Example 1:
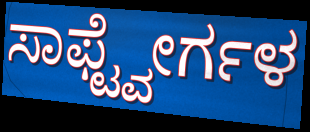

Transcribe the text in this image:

ಸಾಫ್ಟ್ವೇರ್ಗಳ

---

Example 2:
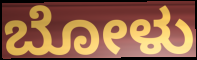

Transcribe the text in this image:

ಬೋಳು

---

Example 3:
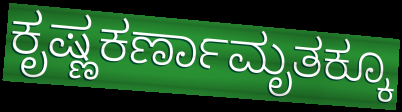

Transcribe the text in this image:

ಕೃಷ್ಣಕರ್ಣಾಮೃತಕ್ಕೂ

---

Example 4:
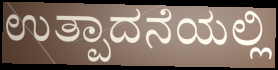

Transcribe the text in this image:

ಉತ್ಪಾದನೆಯಲ್ಲಿ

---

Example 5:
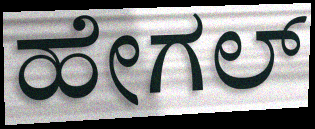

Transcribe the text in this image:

ಹೇಗಲ್